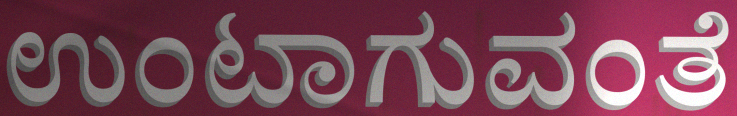
ಉಂಟಾಗುವಂತೆ